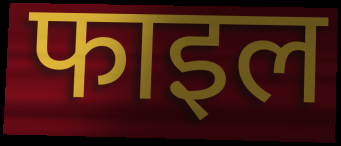
फाइल